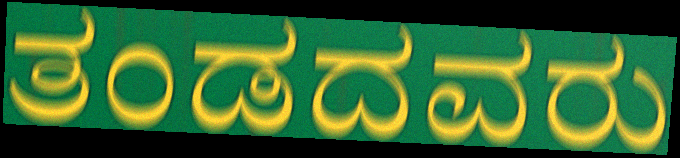
ತಂಡದವರು